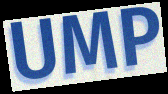
UMP